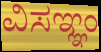
ವಿಸಞ್ಞಂ